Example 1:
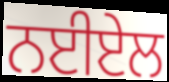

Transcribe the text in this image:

ਨਈਏਲ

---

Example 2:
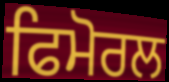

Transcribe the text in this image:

ਫਿਮੋਰਲ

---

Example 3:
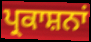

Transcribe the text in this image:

ਪ੍ਰਕਾਸ਼ਨਾਂ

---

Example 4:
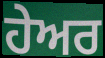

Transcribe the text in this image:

ਹੇਅਰ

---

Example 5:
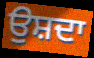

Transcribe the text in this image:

ਉਸ਼ਦਾ